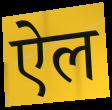
ऐल